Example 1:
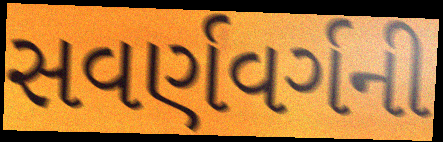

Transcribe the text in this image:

સવર્ણવર્ગની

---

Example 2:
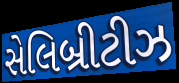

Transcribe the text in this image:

સેલિબ્રીટીઝ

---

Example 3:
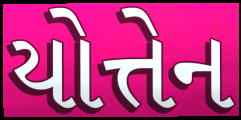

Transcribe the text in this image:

યોત્તેન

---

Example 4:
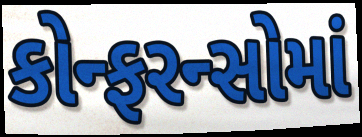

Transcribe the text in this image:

કોન્ફરન્સોમાં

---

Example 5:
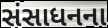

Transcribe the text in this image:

સંસાધનના